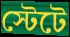
স্টেটে